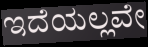
ಇದೆಯಲ್ಲವೇ